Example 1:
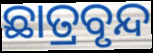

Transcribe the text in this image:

ଛାତ୍ରବୃନ୍ଦ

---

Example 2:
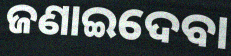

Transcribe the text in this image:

ଜଣାଇଦେବା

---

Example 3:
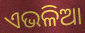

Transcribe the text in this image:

ଏଭଳିଆ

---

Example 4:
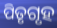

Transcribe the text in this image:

ପିତୃଗୃହ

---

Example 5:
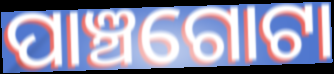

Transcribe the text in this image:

ପାଞ୍ଚଗୋଟା